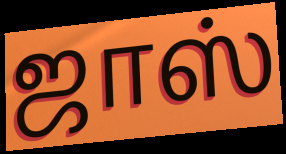
ஜாஸ்